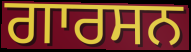
ਗਾਰਸਨ